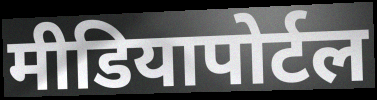
मीडियापोर्टल